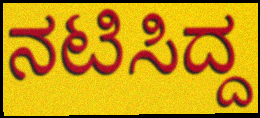
ನಟಿಸಿದ್ದ